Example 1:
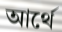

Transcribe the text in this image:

আর্থে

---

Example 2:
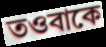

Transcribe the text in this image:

তওবাকে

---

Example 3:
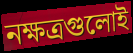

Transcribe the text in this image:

নক্ষত্রগুলোই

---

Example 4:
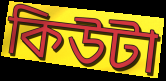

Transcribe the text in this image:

কিউটা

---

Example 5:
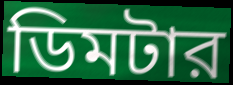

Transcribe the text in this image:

ডিমটার